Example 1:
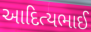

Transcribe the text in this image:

આદિત્યભાઈ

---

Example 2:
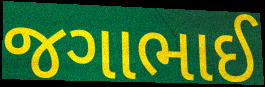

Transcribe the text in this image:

જગાભાઈ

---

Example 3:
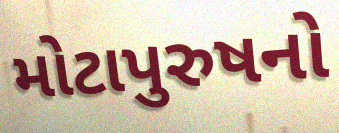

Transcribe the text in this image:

મોટાપુરુષનો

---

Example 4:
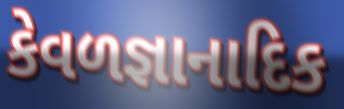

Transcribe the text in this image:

કેવળજ્ઞાનાદિક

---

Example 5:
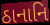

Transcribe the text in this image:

ઠાનાનિ